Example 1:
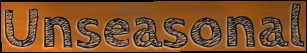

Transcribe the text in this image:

Unseasonal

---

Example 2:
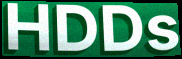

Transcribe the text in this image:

HDDs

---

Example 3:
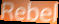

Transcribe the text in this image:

Rebel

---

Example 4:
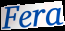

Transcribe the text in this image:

Fera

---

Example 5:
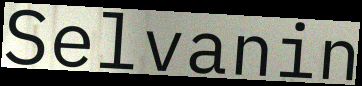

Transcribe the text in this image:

Selvanin